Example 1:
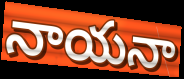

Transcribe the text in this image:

నాయనా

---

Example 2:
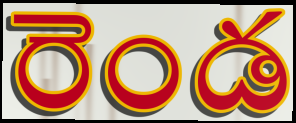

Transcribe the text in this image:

రెండ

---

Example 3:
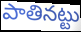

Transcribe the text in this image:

పాతినట్టు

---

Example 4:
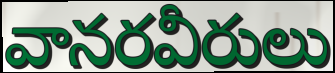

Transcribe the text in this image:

వానరవీరులు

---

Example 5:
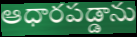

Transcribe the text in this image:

ఆధారపడ్డాను